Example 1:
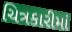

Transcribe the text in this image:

ચિત્રકારીમાં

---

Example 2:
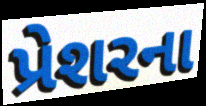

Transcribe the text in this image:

પ્રેશરના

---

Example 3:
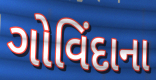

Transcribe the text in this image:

ગોવિંદાના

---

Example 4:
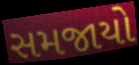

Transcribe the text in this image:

સમજાયો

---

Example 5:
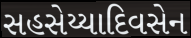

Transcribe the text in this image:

સહસેય્યાદિવસેન